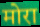
मोरा